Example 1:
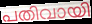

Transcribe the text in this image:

പതിവായി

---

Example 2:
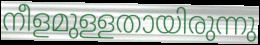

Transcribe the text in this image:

നീളമുള്ളതായിരുന്നു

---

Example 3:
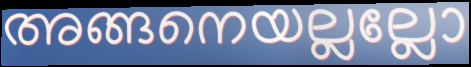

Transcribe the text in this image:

അങ്ങനെയല്ലല്ലോ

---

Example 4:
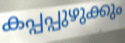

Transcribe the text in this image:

കപ്പപ്പുഴുക്കും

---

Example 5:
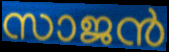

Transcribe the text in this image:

സാജൻ